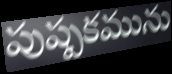
పుష్పకమును